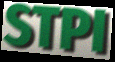
STPI